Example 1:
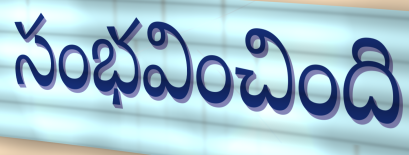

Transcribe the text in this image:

సంభవించింది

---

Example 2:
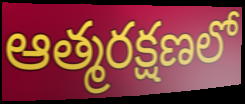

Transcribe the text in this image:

ఆత్మరక్షణలో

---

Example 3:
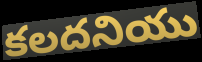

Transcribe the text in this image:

కలదనియు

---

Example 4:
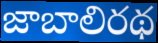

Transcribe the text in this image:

జాబాలిరథ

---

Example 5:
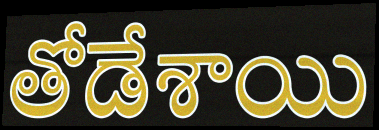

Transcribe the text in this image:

తోడేశాయి